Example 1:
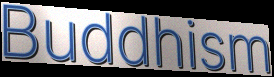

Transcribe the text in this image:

Buddhism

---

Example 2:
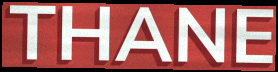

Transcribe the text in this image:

THANE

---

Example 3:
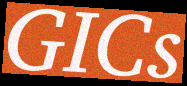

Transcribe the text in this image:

GICs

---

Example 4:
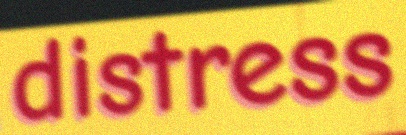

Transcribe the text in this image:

distress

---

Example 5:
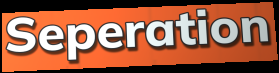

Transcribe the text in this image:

Seperation